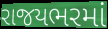
રાજયભરમાં